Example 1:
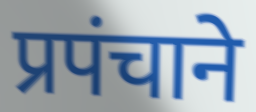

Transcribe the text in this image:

प्रपंचाने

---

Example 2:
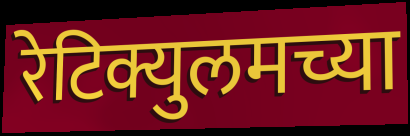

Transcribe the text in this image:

रेटिक्युलमच्या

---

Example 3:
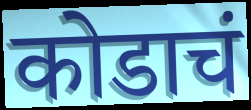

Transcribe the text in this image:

कोडाचं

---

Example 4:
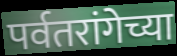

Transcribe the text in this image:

पर्वतरांगेच्या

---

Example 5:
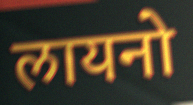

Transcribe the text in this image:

लायनो